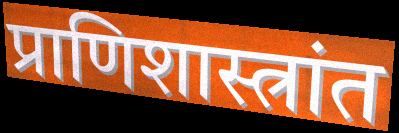
प्राणिशास्त्रांत